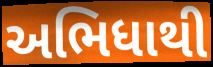
અભિધાથી